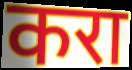
करा